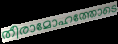
തീരാമോഹത്തോടെ